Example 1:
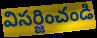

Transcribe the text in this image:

విసర్జించండి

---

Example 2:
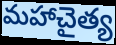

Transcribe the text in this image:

మహాచైత్య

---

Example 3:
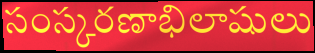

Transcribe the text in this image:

సంస్కరణాభిలాషులు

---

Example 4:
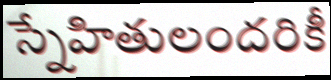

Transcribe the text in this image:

స్నేహితులందరికీ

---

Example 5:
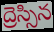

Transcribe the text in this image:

ద్రెస్సిన